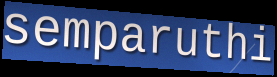
semparuthi